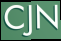
CJN